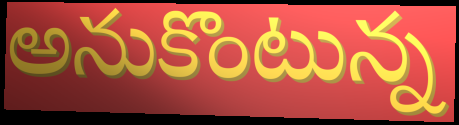
అనుకొంటున్న